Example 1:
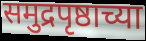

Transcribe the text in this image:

समुद्रपृष्ठाच्या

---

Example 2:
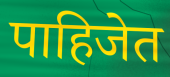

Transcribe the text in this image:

पाहिजेत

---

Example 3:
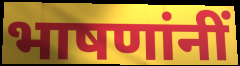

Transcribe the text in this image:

भाषणांनीं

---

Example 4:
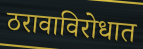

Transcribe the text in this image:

ठरावाविरोधात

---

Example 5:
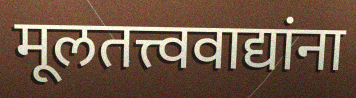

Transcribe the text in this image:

मूलतत्त्ववाद्यांना